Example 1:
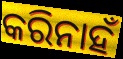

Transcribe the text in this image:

କରିନାହଁ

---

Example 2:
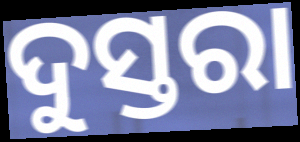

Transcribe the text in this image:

ଦୁସ୍ତରା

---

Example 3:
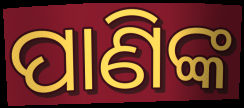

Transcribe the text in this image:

ପାଣିଙ୍କ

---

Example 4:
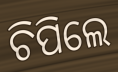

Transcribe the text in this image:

ଚିପିଲେ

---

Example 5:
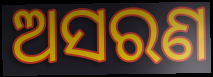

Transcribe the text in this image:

ଅସରଣ